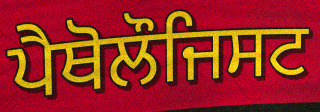
ਪੈਥੋਲੌਜਿਸਟ